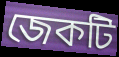
জেকটি